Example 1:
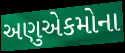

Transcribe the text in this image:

અણુએકમોના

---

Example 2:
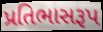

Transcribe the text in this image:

પ્રતિભાસરૂપ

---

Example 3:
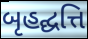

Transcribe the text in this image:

બૃહદ્ઘત્તિ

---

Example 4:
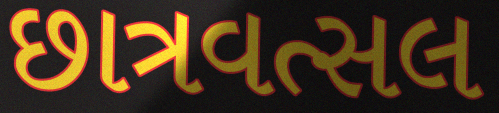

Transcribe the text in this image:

છાત્રવત્સલ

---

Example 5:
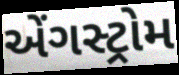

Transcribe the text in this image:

એંગસ્ટ્રોમ